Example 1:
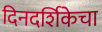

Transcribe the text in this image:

दिनदर्शिकेचा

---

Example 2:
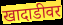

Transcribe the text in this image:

खादाडीवर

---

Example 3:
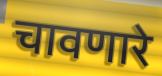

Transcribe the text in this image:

चावणारे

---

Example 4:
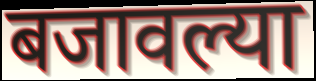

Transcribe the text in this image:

बजावल्या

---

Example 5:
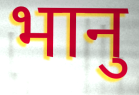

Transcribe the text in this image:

भानु